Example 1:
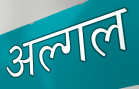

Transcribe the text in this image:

अल्गल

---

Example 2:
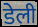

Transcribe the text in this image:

डेली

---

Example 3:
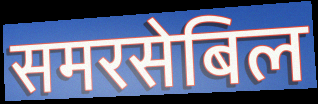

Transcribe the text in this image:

समरसेबिल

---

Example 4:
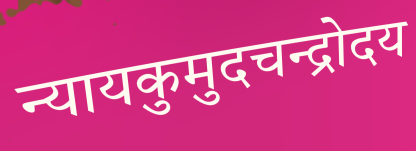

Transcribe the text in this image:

न्यायकुमुदचन्द्रोदय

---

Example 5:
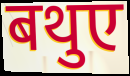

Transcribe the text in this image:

बथुए